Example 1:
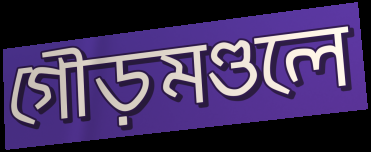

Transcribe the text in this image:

গৌড়মণ্ডলে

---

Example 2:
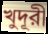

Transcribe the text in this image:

খুদূরী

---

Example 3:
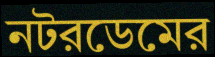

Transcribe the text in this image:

নটরডেমের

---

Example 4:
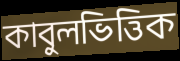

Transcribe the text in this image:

কাবুলভিত্তিক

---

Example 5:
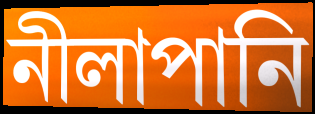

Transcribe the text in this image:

নীলাপানি